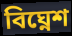
বিঘ্নেশ